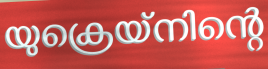
യുക്രെയ്നിന്റെ